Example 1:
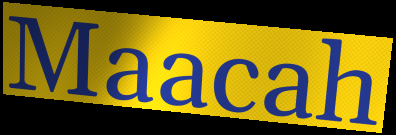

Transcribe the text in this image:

Maacah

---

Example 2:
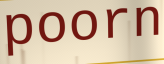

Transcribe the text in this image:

poorn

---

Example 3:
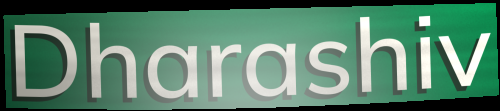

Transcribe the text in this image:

Dharashiv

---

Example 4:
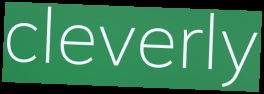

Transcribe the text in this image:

cleverly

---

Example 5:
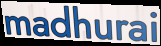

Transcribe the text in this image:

madhurai